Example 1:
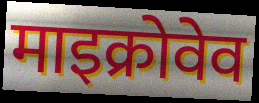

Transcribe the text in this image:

माइक्रोवेव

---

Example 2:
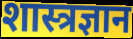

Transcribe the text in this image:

शास्त्रज्ञान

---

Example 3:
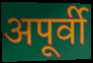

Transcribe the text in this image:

अपूर्वी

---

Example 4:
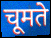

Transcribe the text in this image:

चूमते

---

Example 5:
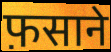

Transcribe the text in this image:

फ़साने